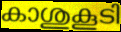
കാശുകൂടി